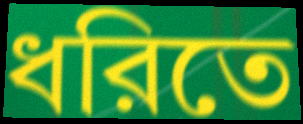
ধরিতে